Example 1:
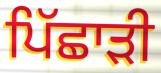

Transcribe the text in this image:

ਪਿੱਛਾੜੀ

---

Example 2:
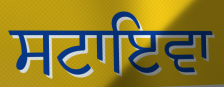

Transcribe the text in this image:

ਸਟਾਇਵਾ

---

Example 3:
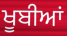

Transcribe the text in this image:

ਖੂਬੀਆਂ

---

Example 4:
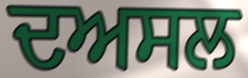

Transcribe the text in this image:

ਦਅਸਲ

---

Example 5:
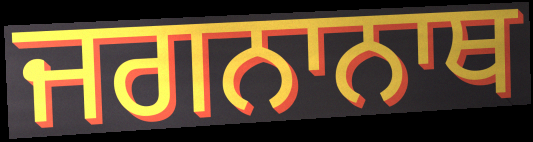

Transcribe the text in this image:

ਜਗਨਾਨਾਥ